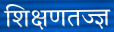
शिक्षणतज्ज्ञ